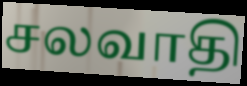
சலவாதி